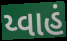
ય્વાહં